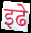
इढे